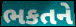
ભકતને